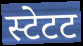
स्टेटट